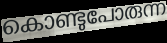
കൊണ്ടുപോരുന്ന